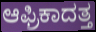
ಆಫ್ರಿಕಾದತ್ತ